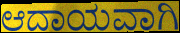
ಆದಾಯವಾಗಿ